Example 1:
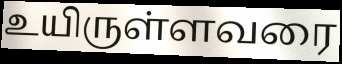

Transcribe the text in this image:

உயிருள்ளவரை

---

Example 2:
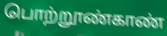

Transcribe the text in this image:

பொற்றூண்காண்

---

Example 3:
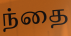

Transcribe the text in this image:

ந்தை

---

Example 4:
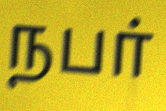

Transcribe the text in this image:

நபர்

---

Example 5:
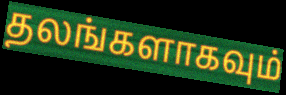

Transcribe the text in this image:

தலங்களாகவும்